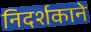
निदर्शकाने